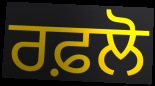
ਰਫ਼ਲੋ